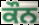
ਕੌਨ